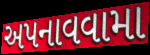
અપનાવવામા